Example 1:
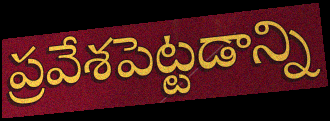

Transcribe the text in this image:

ప్రవేశపెట్టడాన్ని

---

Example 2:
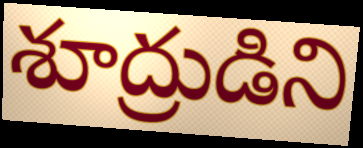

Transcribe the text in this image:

శూద్రుడిని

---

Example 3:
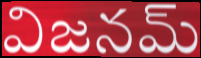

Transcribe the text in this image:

విజనమ్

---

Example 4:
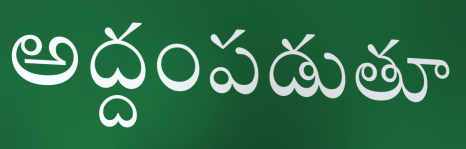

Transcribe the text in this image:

అద్దంపడుతూ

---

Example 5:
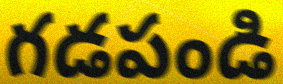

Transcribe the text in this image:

గడపండి